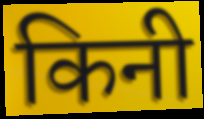
किनी